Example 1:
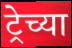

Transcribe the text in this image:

ट्रेच्या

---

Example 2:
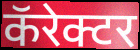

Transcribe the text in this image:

कॅरेक्टर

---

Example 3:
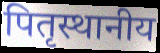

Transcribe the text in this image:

पितृस्थानीय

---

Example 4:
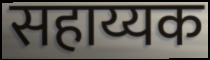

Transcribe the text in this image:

सहाय्यक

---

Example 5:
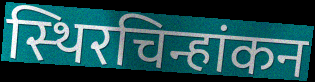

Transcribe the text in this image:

स्थिरचिन्हांकन